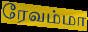
ரேவம்மா